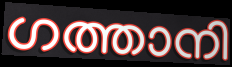
ഗത്താനി